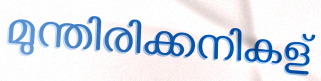
മുന്തിരിക്കനികള്